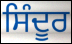
ਸਿੰਦੂਰ